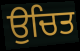
ਉਚਿਤ